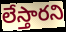
లేస్తారని